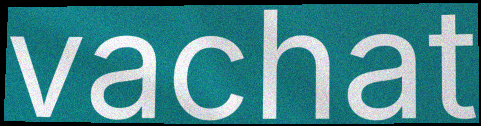
vachat